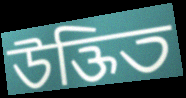
উক্তিত